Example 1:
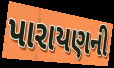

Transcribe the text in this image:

પારાયણની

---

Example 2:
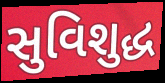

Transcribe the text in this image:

સુવિશુદ્ધ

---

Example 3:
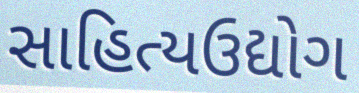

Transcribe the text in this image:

સાહિત્યઉદ્યોગ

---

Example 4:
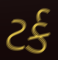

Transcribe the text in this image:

ટર્ક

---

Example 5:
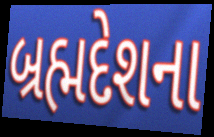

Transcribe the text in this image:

બ્રહ્મદેશના